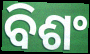
ବିଶଂ